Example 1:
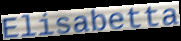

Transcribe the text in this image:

Elisabetta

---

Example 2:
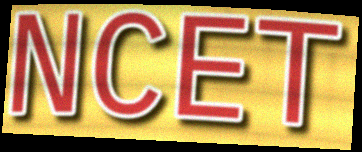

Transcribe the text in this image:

NCET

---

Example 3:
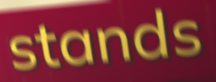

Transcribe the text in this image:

stands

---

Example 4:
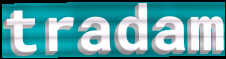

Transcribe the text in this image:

tradam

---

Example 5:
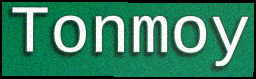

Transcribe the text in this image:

Tonmoy